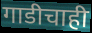
गाडीचाही